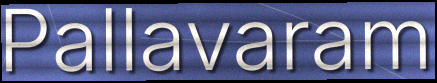
Pallavaram